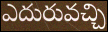
ఎదురువచ్చి